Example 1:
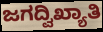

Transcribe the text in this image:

ಜಗದ್ವಿಖ್ಯಾತಿ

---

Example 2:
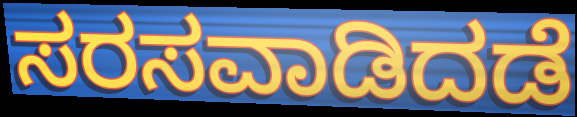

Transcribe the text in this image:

ಸರಸವಾಡಿದಡೆ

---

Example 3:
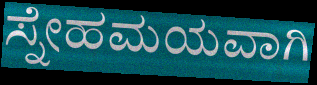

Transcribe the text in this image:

ಸ್ನೇಹಮಯವಾಗಿ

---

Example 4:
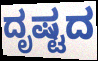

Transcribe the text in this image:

ದೃಷ್ಟದ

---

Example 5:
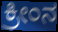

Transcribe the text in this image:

ಕ್ರೀಂನ